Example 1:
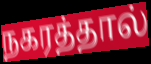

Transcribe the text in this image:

நகரத்தால்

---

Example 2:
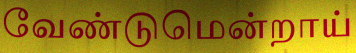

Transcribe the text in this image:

வேண்டுமென்றாய்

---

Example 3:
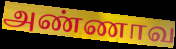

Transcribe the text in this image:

அண்ணாவ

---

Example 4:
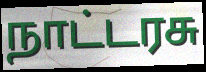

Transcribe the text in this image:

நாட்டரசு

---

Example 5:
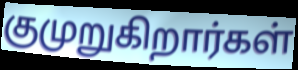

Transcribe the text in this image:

குமுறுகிறார்கள்